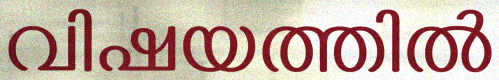
വിഷയത്തിൽ